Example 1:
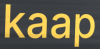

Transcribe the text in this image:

kaap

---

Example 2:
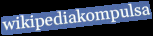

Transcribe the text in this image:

wikipediakompulsa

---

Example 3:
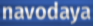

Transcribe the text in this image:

navodaya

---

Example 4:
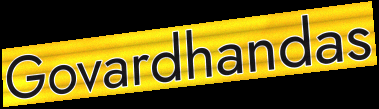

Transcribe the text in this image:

Govardhandas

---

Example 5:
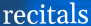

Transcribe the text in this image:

recitals